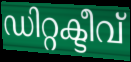
ഡിറ്റക്ടീവ്